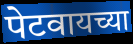
पेटवायच्या